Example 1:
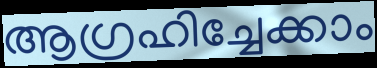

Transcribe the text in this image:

ആഗ്രഹിച്ചേക്കാം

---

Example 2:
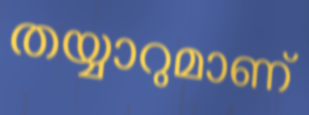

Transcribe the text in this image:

തയ്യാറുമാണ്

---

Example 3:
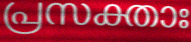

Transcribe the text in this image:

പ്രസക്താഃ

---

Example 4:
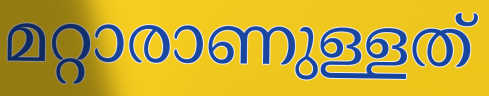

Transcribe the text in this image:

മറ്റാരാണുള്ളത്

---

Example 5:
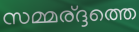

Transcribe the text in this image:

സമ്മര്ദ്ദത്തെ